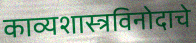
काव्यशास्त्रविनोदाचे